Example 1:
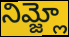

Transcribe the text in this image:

నిమ్జ్లో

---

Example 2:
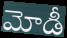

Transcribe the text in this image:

మోడీ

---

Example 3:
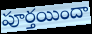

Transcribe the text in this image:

పూర్తయిందా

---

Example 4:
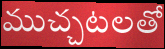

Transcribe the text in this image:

ముచ్చటలతో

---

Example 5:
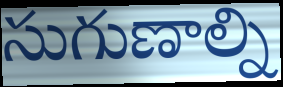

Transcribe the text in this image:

సుగుణాల్ని